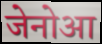
जेनोआ